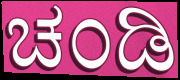
ಚಂಡಿ